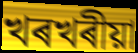
খৰখৰীয়া